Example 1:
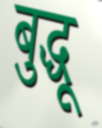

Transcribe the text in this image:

बुद्धू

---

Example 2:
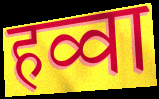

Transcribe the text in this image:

हव्वा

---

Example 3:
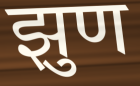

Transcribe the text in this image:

झुण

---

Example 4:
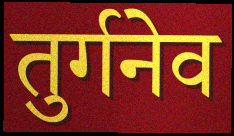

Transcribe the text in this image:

तुर्गनेव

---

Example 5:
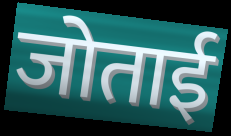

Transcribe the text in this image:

जोताई